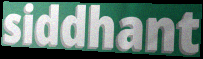
siddhant